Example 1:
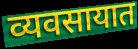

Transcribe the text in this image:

व्यवसायात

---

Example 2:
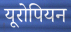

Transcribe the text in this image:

यूरोपियन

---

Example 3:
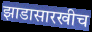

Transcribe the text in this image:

झाडासारखीच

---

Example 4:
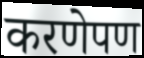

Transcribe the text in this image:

करणेपण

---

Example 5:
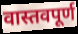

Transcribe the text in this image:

वास्तवपूर्ण